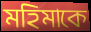
মহিমাকে